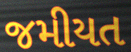
જમીયત